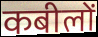
कबीलों